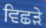
ਵਿਛੜੇ